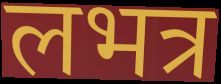
लभत्र